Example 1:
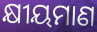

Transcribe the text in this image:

କ୍ଷୀୟମାଣ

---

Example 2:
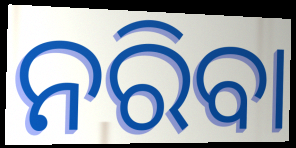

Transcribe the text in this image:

ନରିବା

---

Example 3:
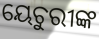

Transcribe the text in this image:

ୟେଚୁରୀଙ୍କ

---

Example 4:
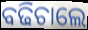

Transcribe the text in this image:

ବଢିଚାଲେ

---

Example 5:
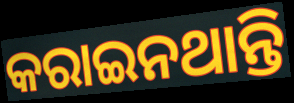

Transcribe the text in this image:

କରାଇନଥାନ୍ତି